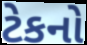
ટેકનો